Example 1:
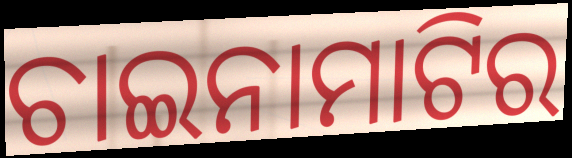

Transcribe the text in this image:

ଚାଇନାମାଟିର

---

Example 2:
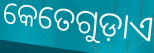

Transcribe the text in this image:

କେତେଗୁଡ଼ାଏ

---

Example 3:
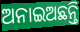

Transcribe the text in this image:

ଅନାଇଅଛନ୍ତି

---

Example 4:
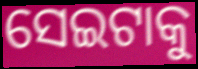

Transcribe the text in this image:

ସେଇଟାକୁ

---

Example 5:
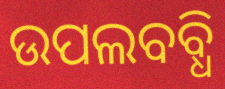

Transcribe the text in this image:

ଉପଲବବ୍ଧି